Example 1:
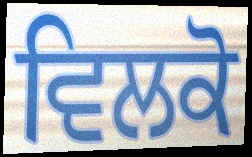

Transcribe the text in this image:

ਵਿਲਕੋ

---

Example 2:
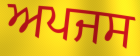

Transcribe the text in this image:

ਅਪਜਸ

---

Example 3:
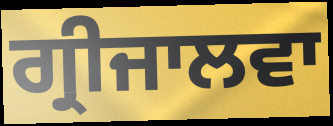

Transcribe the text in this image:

ਗ੍ਰੀਜਾਲਵਾ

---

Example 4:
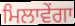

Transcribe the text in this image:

ਮਿਲਾਵੇਂਗਾ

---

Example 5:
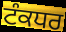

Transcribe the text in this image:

ਟੰਕਧਰ